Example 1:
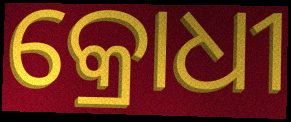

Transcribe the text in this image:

କ୍ରୋଧୀ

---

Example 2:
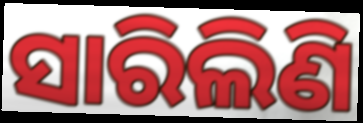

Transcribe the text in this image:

ସାରିଲିଣି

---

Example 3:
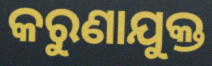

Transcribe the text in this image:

କରୁଣାଯୁକ୍ତ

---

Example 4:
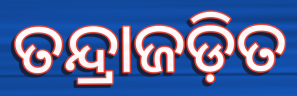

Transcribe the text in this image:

ତନ୍ଦ୍ରାଜଡ଼ିତ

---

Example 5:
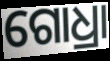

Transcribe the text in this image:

ଗୋଧ୍ରା